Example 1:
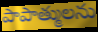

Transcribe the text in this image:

పాపాత్ములను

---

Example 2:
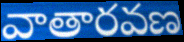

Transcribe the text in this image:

వాతారవణ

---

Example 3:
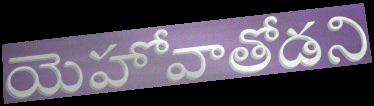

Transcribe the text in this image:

యెహోవాతోడని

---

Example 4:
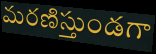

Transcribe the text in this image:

మరణిస్తుండగా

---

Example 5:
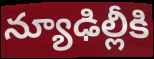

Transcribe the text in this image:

న్యూఢిల్లీకి